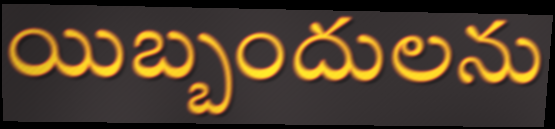
యిబ్బందులను